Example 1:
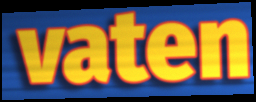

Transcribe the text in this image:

vaten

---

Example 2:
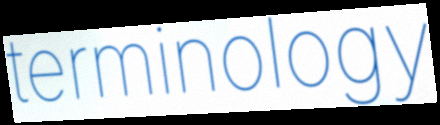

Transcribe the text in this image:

terminology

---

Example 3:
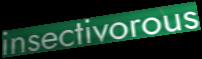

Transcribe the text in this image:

insectivorous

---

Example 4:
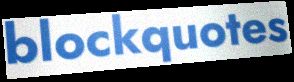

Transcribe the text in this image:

blockquotes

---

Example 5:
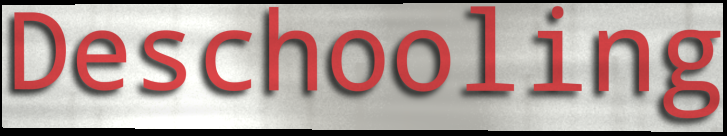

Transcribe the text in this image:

Deschooling